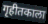
गृहीतकाला